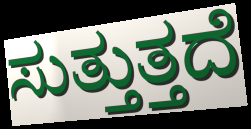
ಸುತ್ತುತ್ತದೆ